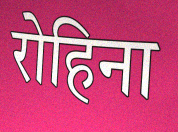
रोहिना